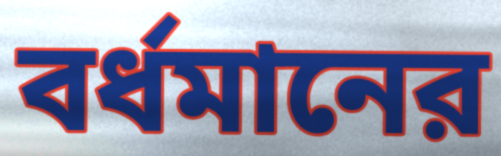
বর্ধমানের